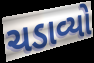
ચડાવ્યો